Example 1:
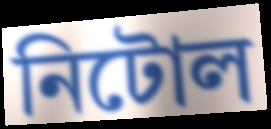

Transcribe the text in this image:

নিটোল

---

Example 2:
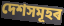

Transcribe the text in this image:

দেশসমূহৰ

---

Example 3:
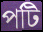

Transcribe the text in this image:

পটি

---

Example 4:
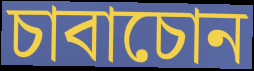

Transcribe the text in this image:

চাবাচোন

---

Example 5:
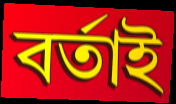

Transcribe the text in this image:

বৰ্তাই